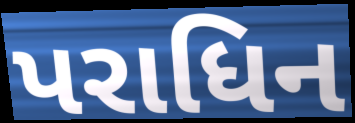
પરાધિન